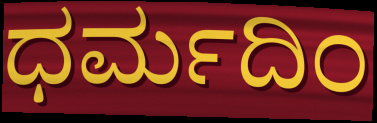
ಧರ್ಮದಿಂ